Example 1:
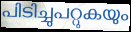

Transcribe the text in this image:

പിടിച്ചുപറ്റുകയും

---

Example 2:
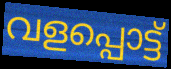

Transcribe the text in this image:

വളപ്പൊട്ട്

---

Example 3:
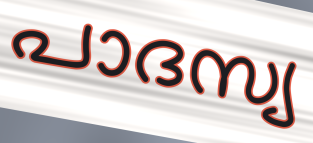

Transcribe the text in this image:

പാദസ്യ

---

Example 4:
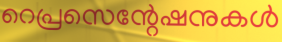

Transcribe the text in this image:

റെപ്രസെന്റേഷനുകൾ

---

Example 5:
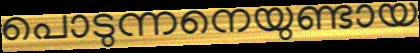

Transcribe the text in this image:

പൊടുന്നനെയുണ്ടായ